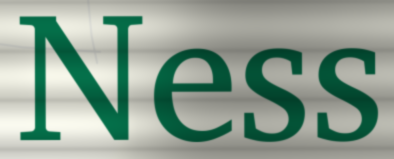
Ness